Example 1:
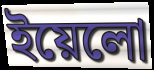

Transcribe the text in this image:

ইয়েলো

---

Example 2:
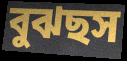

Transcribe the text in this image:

বুঝছস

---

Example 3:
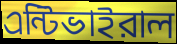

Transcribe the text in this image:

এন্টিভাইরাল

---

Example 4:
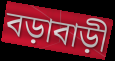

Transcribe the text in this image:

বড়াবাড়ী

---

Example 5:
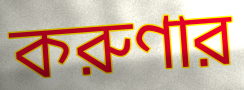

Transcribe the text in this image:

করুণার